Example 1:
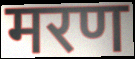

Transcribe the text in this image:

मरण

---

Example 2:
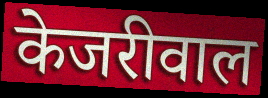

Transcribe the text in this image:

केजरीवाल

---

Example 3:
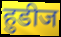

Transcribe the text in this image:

हुडीज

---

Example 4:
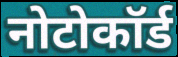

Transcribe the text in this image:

नोटोकॉर्ड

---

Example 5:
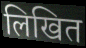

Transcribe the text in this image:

लिखित